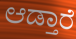
ಆಡ್ತಾರೆ